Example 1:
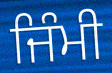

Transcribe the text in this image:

ਜਿੰਮੀ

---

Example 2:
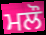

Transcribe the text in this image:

ਮਲੌ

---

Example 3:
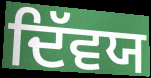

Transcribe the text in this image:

ਦਿੱਵਯ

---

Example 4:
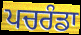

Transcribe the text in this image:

ਪਚਰੰਡਾ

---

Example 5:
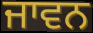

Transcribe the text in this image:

ਜਾਵਨ